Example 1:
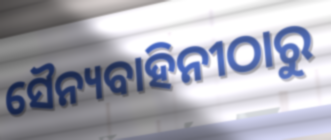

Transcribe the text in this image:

ସୈନ୍ୟବାହିନୀଠାରୁ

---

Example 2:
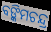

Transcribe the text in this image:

ବଙ୍କିମଚନ୍ଦ୍ର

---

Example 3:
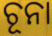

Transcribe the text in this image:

ଚୂନା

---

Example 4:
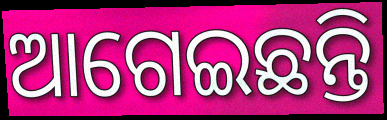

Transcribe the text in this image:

ଆଗେଇଛନ୍ତି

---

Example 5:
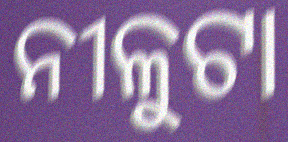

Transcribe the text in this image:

ନୀଳୁଟା